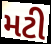
મટી